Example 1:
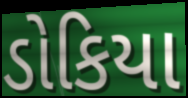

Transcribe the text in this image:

ડોકિયા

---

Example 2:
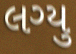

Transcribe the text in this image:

લગ્યુ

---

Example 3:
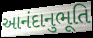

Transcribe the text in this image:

આનંદાનુભૂતિ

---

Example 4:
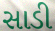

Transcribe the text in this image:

સાડી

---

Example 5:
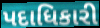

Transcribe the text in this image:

પદાધિકારી